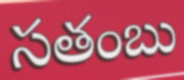
సతంబు